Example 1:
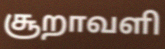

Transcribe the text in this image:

சூறாவளி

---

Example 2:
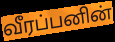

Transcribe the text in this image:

வீரப்பனின்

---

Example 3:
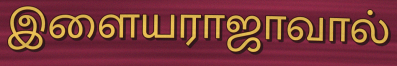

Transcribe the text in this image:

இளையராஜாவால்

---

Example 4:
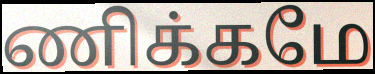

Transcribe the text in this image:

ணிக்கமே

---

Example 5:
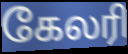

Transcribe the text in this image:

கேலரி